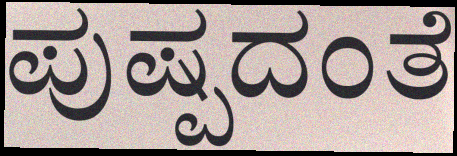
ಪುಷ್ಪದಂತೆ